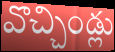
వొచ్చిండ్లు